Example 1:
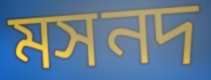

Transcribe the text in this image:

মসনদ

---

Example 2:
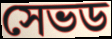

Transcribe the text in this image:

সেভড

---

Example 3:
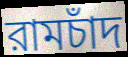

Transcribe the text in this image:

রামচাঁদ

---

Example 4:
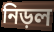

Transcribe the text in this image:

নিড়ল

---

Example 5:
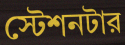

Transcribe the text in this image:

স্টেশনটার